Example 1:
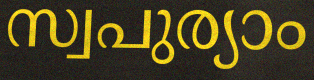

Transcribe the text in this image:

സ്വപുര്യാം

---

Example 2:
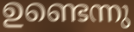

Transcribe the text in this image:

ഉണ്ടെന്നു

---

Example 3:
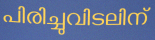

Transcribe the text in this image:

പിരിച്ചുവിടലിന്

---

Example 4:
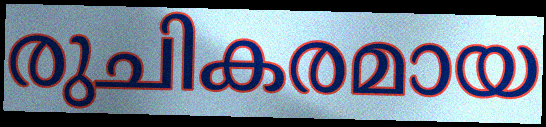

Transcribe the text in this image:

രുചികരമായ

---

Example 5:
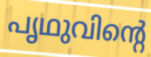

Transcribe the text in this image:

പൃഥുവിന്റെ